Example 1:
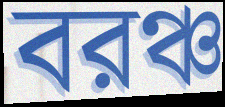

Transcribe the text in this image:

বরঞ্চ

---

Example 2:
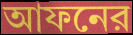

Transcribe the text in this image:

আফনের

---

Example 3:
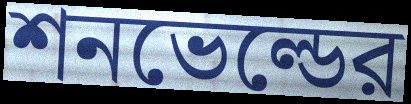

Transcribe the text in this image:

শনভেল্ডের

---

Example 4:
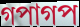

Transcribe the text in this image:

গপাগপ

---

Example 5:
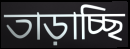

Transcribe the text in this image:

তাড়াচ্ছি